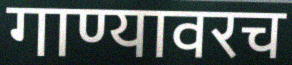
गाण्यावरच